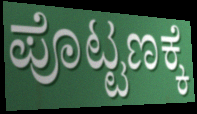
ಪೊಟ್ಟಣಕ್ಕೆ